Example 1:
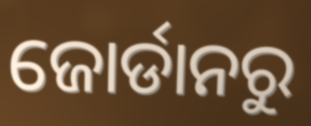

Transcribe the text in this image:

ଜୋର୍ଡାନରୁ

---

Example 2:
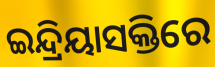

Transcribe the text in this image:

ଇନ୍ଦ୍ରିୟାସକ୍ତିରେ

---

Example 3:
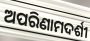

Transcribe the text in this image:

ଅପରିଣାମଦର୍ଶୀ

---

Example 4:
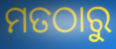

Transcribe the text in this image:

ମତଠାରୁ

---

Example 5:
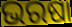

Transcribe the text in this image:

ଭରଷା